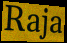
Raja